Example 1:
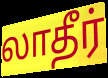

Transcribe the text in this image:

லாதீர்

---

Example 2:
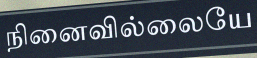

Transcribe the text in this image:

நினைவில்லையே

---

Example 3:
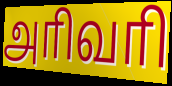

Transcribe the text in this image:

அரிவரி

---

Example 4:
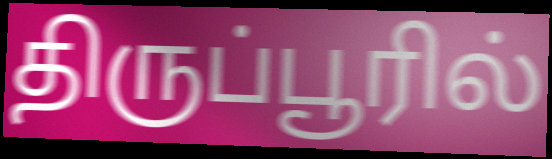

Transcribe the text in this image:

திருப்பூரில்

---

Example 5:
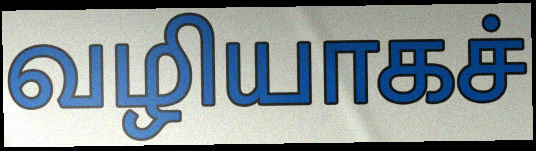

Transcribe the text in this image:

வழியாகச்